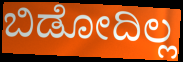
ಬಿಡೋದಿಲ್ಲ